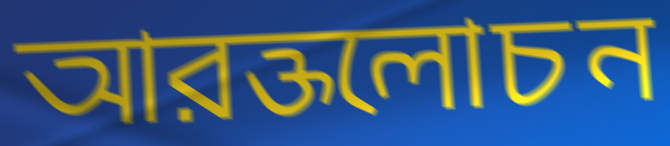
আরক্তলোচন